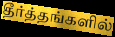
தீர்த்தங்களில்